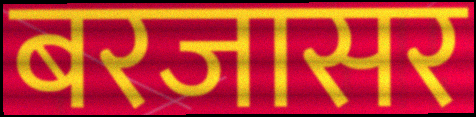
बरजासर